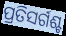
ପ୍ରତିସର୍ଗଶ୍ଚ